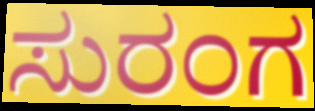
ಸುರಂಗ